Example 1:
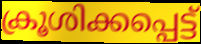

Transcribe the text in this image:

ക്രൂശിക്കപ്പെട്ട്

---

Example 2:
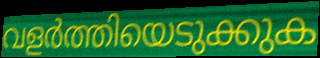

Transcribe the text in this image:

വളർത്തിയെടുക്കുക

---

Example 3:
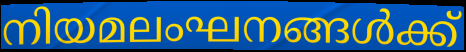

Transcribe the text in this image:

നിയമലംഘനങ്ങൾക്ക്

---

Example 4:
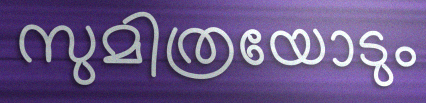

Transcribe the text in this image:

സുമിത്രയോടും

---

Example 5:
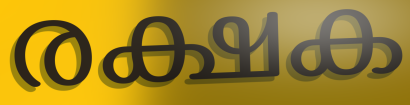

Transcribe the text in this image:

രക്ഷക